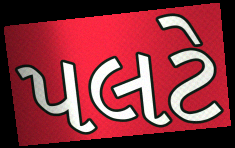
પલટે